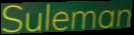
Suleman